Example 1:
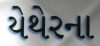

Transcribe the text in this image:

યેથેરના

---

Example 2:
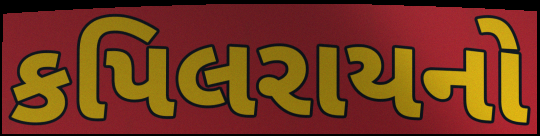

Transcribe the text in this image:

કપિલરાયનો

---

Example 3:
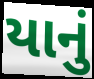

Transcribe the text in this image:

યાનું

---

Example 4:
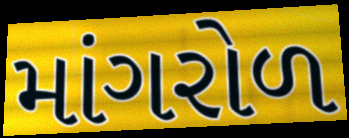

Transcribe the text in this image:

માંગરોળ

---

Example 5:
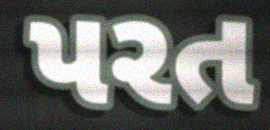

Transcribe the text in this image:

પરત